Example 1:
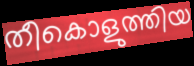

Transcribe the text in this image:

തീകൊളുത്തിയ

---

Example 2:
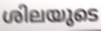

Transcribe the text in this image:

ശിലയുടെ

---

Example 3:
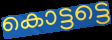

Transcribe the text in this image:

കൊട്ടട്ടെ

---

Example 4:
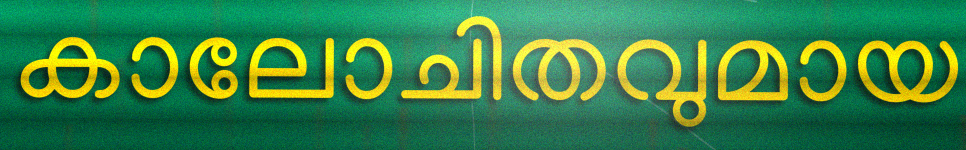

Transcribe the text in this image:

കാലോചിതവുമായ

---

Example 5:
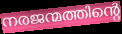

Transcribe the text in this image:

നരജന്മത്തിന്റെ